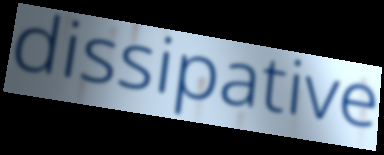
dissipative